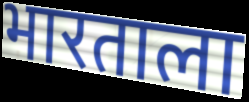
भारताला